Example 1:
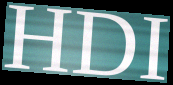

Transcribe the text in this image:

HDI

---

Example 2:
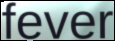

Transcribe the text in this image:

fever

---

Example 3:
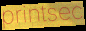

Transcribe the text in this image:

printsec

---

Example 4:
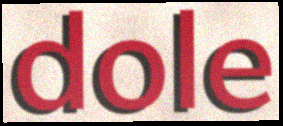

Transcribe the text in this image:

dole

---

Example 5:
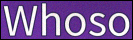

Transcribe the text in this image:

Whoso